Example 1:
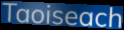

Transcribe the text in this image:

Taoiseach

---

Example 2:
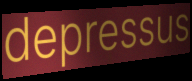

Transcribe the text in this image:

depressus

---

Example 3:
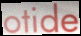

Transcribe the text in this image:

otide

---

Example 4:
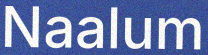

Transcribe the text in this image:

Naalum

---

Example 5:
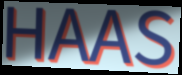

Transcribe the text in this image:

HAAS